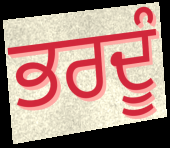
ਭਰਦੂੰ